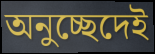
অনুচ্ছেদেই